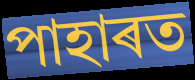
পাহাৰত